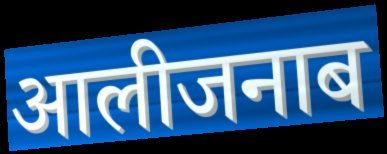
आलीजनाब